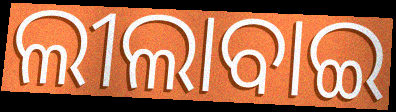
ଲୀଲାବାଇ